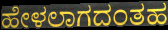
ಹೇಳಲಾಗದಂತಹ